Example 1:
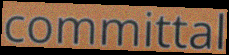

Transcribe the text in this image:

committal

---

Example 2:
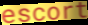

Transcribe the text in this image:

escort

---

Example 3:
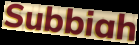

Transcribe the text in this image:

Subbiah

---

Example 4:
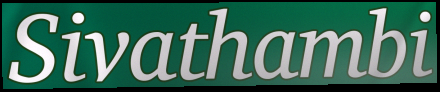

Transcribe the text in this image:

Sivathambi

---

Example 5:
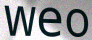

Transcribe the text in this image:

weo